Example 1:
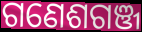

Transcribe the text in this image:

ଗଣେଶଗଞ୍ଜ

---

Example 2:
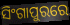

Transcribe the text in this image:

ସିଂଗାପୁରରେ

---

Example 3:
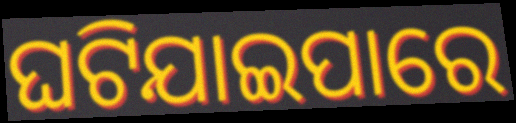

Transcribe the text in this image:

ଘଟିଯାଇପାରେ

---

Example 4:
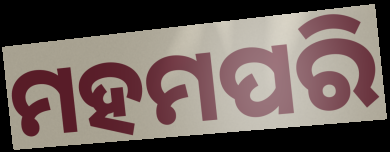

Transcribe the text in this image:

ମହମପରି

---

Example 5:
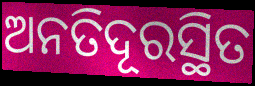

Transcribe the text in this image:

ଅନତିଦୂରସ୍ଥିତ